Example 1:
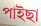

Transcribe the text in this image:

পাইছা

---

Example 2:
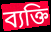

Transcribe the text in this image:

ব্যক্তি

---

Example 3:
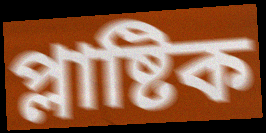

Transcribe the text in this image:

প্লাষ্টিক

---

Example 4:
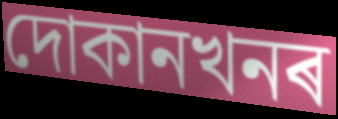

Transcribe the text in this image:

দোকানখনৰ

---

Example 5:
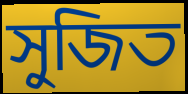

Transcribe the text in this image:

সুজিত